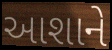
આશાને